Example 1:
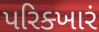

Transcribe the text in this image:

પરિક્ખારં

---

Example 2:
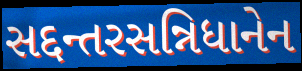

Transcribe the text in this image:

સદ્દન્તરસન્નિધાનેન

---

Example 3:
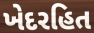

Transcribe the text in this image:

ખેદરહિત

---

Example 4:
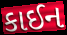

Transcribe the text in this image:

કાઈન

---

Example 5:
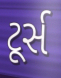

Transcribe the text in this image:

ટૂર્સ